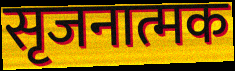
सृजनात्मक